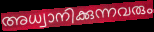
അധ്വാനിക്കുന്നവരും